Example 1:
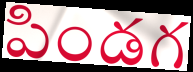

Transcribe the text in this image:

పిండగ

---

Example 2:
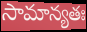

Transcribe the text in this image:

సామాన్యతః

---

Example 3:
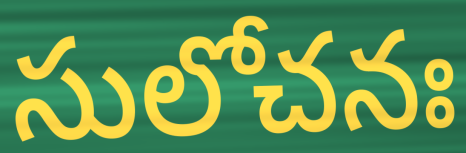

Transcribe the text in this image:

సులోచనః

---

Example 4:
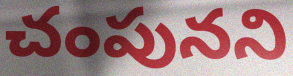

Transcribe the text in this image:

చంపునని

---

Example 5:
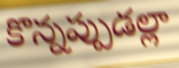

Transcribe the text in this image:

కొన్నప్పుడల్లా